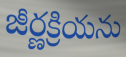
జీర్ణక్రియను